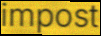
impost